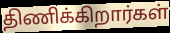
திணிக்கிறார்கள்